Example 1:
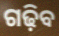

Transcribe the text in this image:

ଗଢ଼ିବ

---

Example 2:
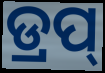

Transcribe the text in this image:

ଡ୍ରପ୍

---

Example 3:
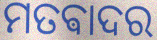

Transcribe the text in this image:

ମତଵାଦର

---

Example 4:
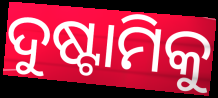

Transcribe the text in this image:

ଦୁଷ୍ଟାମିକୁ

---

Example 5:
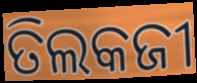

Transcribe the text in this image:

ତିଲକଜୀ